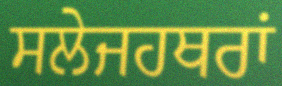
ਸਲੇਜਹਥਰਾਂ